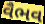
વૈભવ